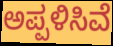
ಅಪ್ಪಳಿಸಿವೆ